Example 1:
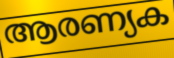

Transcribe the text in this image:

ആരണ്യക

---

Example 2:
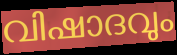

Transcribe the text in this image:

വിഷാദവും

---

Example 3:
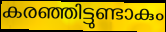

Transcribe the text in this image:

കരഞ്ഞിട്ടുണ്ടാകും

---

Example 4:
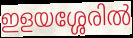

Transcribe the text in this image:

ഇളയശ്ശേരിൽ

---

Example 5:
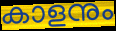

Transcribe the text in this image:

കാളനും